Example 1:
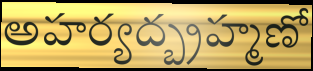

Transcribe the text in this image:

అహర్యద్బ్రహ్మణో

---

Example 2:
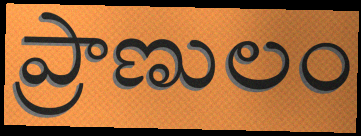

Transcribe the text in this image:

ప్రాణులం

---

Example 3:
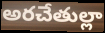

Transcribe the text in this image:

అరచేతుల్లా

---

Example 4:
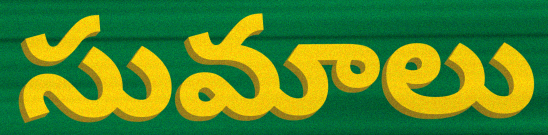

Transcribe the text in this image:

సుమాలు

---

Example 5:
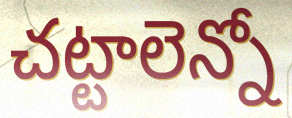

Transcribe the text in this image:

చట్టాలెన్నో